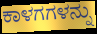
ಕಾಳಗಗಳನ್ನು